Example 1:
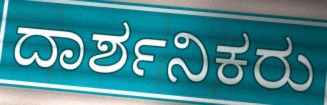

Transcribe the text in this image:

ದಾರ್ಶನಿಕರು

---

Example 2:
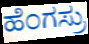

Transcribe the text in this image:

ಹೆಂಗಸ್ರು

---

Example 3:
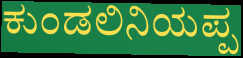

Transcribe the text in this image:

ಕುಂಡಲಿನಿಯಪ್ಪ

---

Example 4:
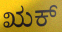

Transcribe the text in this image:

ಋಕ್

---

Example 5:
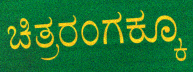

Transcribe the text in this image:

ಚಿತ್ರರಂಗಕ್ಕೂ